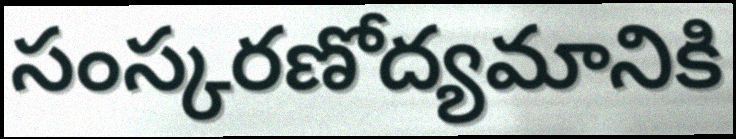
సంస్కరణోద్యమానికి